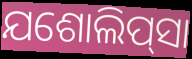
ଯଶୋଲିପ୍‌ସା